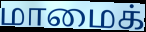
மாமைக்